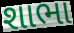
શાભા